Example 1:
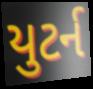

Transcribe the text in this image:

યુટર્ન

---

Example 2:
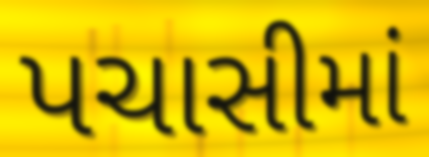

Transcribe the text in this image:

પચાસીમાં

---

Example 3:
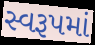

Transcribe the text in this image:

સ્વરૂપમાં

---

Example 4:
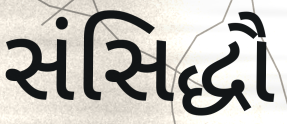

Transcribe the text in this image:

સંસિદ્ધૌ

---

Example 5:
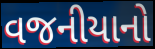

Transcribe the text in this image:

વજનીયાનો